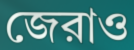
জেরাও